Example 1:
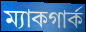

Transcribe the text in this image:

ম্যাকগার্ক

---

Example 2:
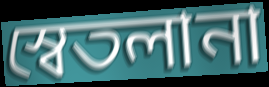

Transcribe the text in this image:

স্বেতলানা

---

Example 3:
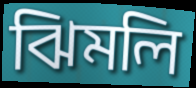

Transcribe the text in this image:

ঝিমলি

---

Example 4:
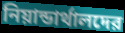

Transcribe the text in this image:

নিয়ান্ডার্থালদের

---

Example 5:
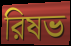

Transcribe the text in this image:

রিষভ